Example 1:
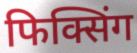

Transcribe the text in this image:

फिक्सिंग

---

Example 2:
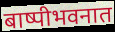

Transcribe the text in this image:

बाष्पीभवनात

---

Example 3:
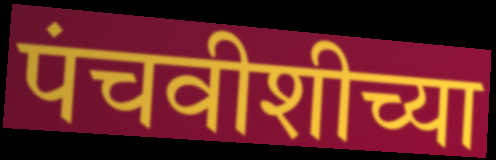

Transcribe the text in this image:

पंचवीशीच्या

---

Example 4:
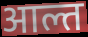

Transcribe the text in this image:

आल्त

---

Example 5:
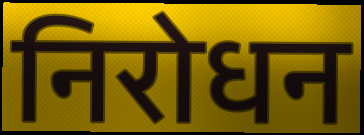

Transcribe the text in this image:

निरोधन